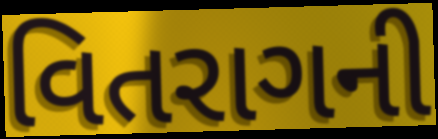
વિતરાગની